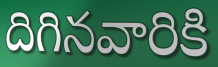
దిగినవారికి